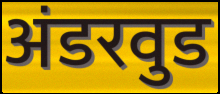
अंडरवुड